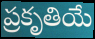
ప్రకృతియే